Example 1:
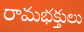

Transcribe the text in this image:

రామభక్తులు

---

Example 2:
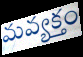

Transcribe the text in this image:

మవ్యక్తం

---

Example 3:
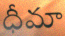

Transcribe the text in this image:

ధీమా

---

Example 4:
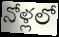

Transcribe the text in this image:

నోళ్లలో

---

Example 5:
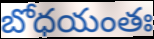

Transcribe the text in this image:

బోధయంతః